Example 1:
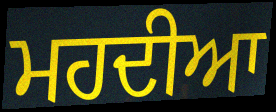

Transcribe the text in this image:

ਮਹਦੀਆ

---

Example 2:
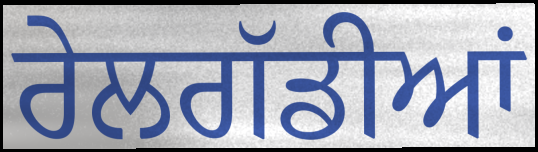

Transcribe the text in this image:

ਰੇਲਗੱਡੀਆਂ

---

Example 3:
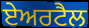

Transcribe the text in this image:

ਏਅਰਟੈਲ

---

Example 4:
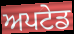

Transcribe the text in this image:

ਅਪਟੇਡ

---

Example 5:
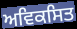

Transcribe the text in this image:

ਅਵਿਕਸਿਤ